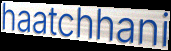
haatchhani